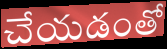
చేయడంతో